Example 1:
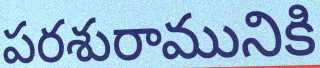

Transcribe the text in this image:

పరశురామునికి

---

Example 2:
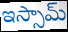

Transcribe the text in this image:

ఇస్సామ్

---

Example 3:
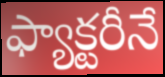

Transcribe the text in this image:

ఫ్యాక్టరీనే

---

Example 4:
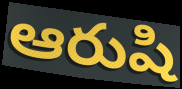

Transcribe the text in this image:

ఆరుషి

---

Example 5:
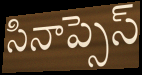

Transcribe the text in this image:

సినాప్సెస్